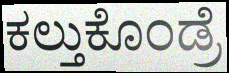
ಕಲ್ತುಕೊಂಡ್ರೆ